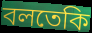
বলতেকি